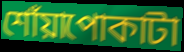
শোঁয়াপোকাটা